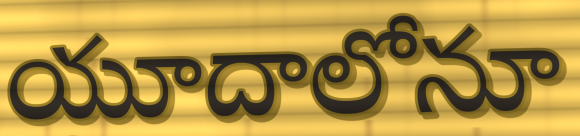
యూదాలోనూ